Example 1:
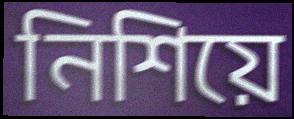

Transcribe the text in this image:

নিশিয়ে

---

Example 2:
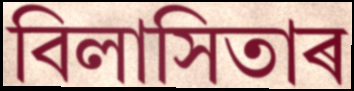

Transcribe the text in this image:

বিলাসিতাৰ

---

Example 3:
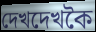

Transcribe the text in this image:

দেখদেখকৈ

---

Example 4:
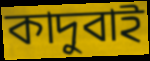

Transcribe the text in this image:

কাদুবাই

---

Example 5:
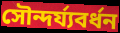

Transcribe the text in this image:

সৌন্দৰ্য্যবৰ্ধন